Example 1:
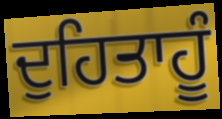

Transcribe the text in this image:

ਦੁਹਿਤਾਹੂੰ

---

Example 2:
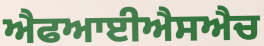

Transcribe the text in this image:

ਐਫਆਈਐਸਐਚ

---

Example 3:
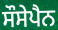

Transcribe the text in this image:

ਸੌਸੇਪੈਨ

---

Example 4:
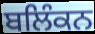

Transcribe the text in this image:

ਬਲਿੰਕਨ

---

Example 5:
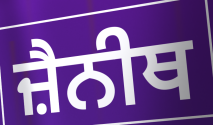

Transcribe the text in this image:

ਜ਼ੈਨੀਥ